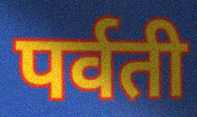
पर्वती